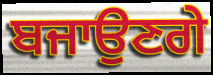
ਬਜਾਉਣਗੇ